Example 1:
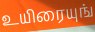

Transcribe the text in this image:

உயிரையுங்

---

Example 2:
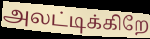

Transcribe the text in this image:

அலட்டிக்கிறே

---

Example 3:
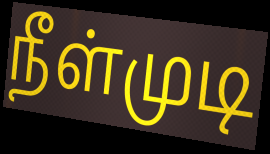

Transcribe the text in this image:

நீள்முடி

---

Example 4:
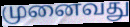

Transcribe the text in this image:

முனைவது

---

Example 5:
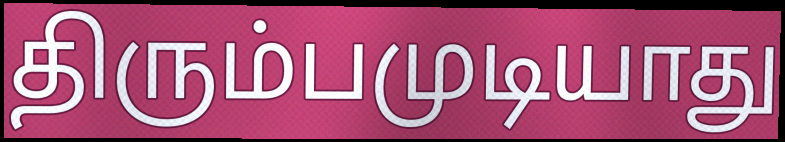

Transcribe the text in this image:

திரும்பமுடியாது